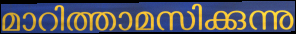
മാറിത്താമസിക്കുന്നു